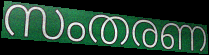
സംതരണ